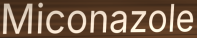
Miconazole